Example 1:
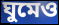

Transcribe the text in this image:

ঘুমেও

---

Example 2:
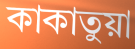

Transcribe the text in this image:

কাকাতুয়া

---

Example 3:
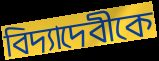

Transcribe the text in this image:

বিদ্যাদেবীকে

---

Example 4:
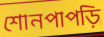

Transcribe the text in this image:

শোনপাপড়ি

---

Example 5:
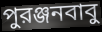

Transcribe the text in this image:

পুরঞ্জনবাবু